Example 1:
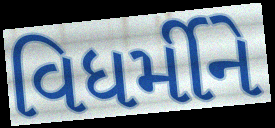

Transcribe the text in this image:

વિધર્મીને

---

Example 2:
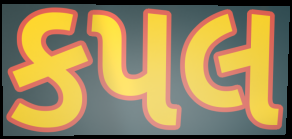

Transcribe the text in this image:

કપલ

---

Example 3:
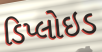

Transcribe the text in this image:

ડિપ્લોઇડ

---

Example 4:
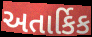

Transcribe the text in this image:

અતાર્કિક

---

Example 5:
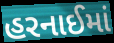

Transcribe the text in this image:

હરનાઈમાં